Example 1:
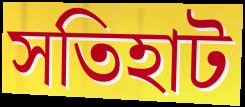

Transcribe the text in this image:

সতিহাট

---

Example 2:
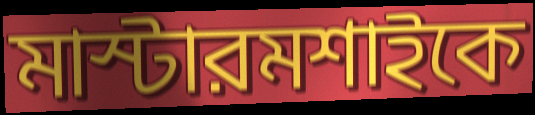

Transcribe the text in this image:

মাস্টারমশাইকে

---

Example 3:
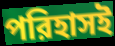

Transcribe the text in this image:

পরিহাসই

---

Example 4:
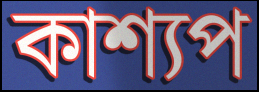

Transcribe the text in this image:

কাশ্যপ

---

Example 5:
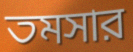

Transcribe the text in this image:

তমসার